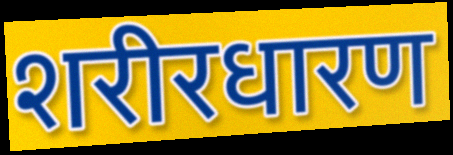
शरीरधारण